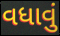
વધાવું